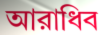
আরাধিব